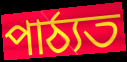
পাঠ্যত